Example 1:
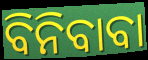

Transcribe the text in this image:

ବିନିବାବା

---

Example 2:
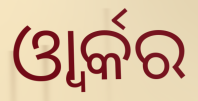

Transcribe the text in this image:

ଓ୍ବାର୍କର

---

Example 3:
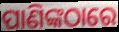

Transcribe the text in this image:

ପାଣିଙ୍କଠାରେ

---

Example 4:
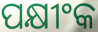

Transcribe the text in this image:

ପକ୍ଷୀଂକ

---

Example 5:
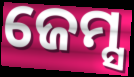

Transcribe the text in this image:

ଜେମ୍ସ